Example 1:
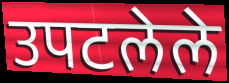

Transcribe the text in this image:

उपटलेले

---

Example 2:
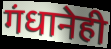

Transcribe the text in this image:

गंधानेही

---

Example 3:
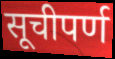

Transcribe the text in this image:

सूचीपर्ण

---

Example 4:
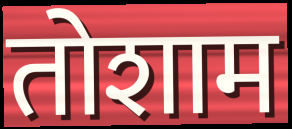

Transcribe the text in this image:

तोशाम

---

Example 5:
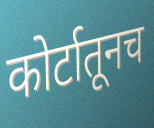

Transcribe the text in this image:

कोर्टातूनच